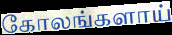
கோலங்களாய்